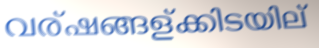
വര്ഷങ്ങള്ക്കിടയില്